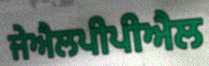
ਜੇਐਲਪੀਪੀਐਲ